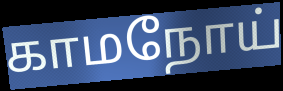
காமநோய்